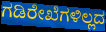
ಗಡಿರೇಖೆಗಳಿಲ್ಲದ